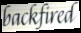
backfired